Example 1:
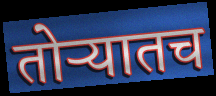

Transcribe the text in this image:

तोऱ्यातच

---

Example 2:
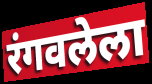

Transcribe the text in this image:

रंगवलेला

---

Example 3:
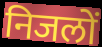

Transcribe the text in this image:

निजलों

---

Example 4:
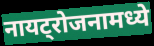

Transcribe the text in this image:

नायट्रोजनामध्ये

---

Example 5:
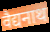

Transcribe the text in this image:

वैद्यनाथ